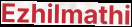
Ezhilmathi